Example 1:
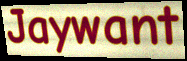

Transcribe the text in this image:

Jaywant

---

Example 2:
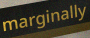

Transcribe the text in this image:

marginally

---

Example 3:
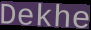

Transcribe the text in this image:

Dekhe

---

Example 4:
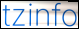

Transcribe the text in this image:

tzinfo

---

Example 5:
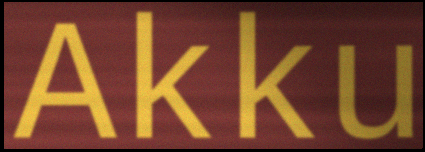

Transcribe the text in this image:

Akku